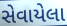
સેવાયેલા